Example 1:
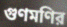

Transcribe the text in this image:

গুণমণির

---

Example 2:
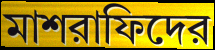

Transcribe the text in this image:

মাশরাফিদের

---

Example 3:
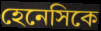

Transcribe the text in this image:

হেনেসিকে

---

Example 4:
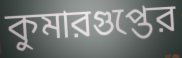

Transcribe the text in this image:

কুমারগুপ্তের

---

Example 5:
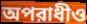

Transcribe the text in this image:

অপরাধীও